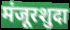
मंजूरशुदा